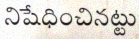
నిషేధించినట్టు